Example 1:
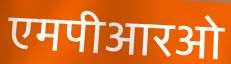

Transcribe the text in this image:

एमपीआरओ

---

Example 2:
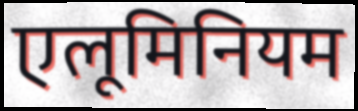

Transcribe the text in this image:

एलूमिनियम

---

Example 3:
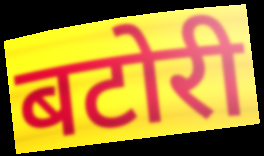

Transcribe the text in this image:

बटोरी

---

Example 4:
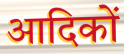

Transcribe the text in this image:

आदिकों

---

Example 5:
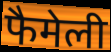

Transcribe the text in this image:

फैमेली